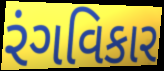
રંગવિકાર